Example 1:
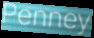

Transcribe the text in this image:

Penney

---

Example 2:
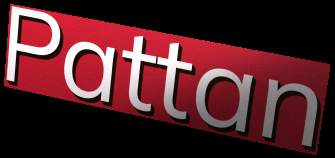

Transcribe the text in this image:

Pattan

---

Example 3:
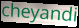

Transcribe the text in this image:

cheyandi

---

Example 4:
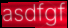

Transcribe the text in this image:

asdfgf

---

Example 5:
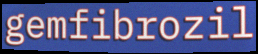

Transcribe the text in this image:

gemfibrozil